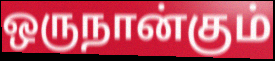
ஒருநான்கும்